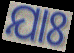
ଯାଃ